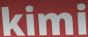
kimi